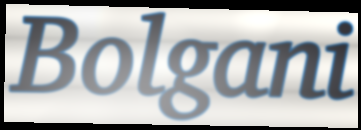
Bolgani